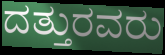
ದತ್ತುರವರು